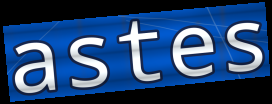
astes